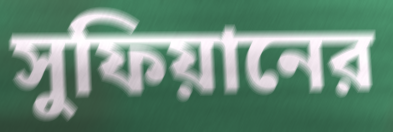
সুফিয়ানের